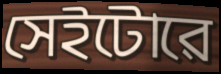
সেইটোৱে